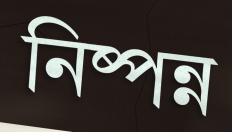
নিষ্পন্ন